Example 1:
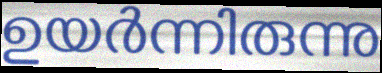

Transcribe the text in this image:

ഉയർന്നിരുന്നു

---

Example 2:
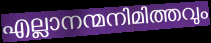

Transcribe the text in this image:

എല്ലാനന്മനിമിത്തവും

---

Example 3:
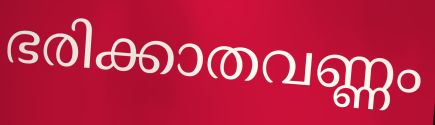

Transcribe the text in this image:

ഭരിക്കാതവണ്ണം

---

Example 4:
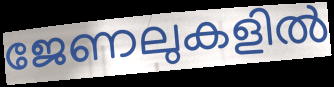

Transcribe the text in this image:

ജേണലുകളിൽ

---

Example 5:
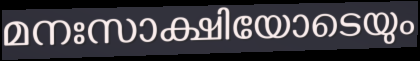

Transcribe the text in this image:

മനഃസാക്ഷിയോടെയും